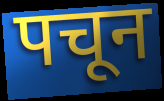
पचून